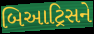
બિઆટ્રિસને